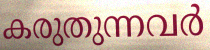
കരുതുന്നവർ